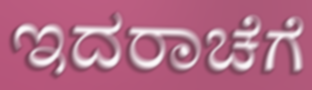
ಇದರಾಚೆಗೆ